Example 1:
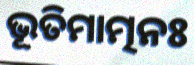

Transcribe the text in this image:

ଭୂତିମାତ୍ମନଃ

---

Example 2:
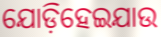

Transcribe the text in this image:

ଯୋଡ଼ିହେଇଯାଉ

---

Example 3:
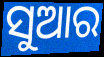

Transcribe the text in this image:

ସୁଆର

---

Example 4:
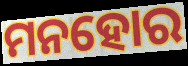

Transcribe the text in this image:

ମନହୋର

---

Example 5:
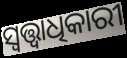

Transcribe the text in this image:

ସ୍ବତ୍ତ୍ବାଧିକାରୀ